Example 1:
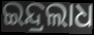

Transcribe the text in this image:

ଇନ୍ଦ୍ରଲାଧ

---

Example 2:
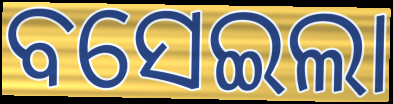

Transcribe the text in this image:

ବସେଇଲା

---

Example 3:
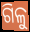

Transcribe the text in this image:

ଗିଳୁ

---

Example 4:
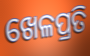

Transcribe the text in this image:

ଖେଳପ୍ରତି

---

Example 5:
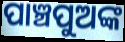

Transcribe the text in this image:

ପାଞ୍ଚପୁଅଙ୍କ